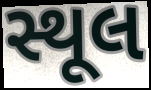
સ્થૂલ